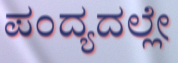
ಪಂದ್ಯದಲ್ಲೇ